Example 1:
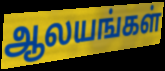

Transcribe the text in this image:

ஆலயங்கள்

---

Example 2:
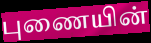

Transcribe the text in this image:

புணையின்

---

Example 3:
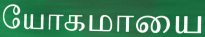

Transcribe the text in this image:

யோகமாயை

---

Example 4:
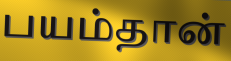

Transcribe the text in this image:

பயம்தான்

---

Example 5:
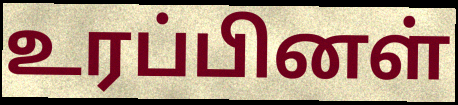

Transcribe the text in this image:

உரப்பினள்